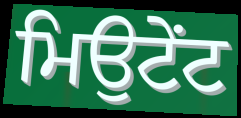
ਮਿਉਟੇਂਟ